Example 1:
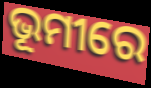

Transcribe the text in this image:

ଭୂମୀରେ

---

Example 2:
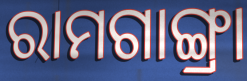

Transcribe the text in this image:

ରାମଗାଙ୍ଗ୍ରା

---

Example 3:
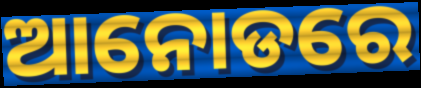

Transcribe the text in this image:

ଆନୋଡରେ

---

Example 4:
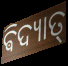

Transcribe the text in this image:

ଵିଦ୍ଯାତ୍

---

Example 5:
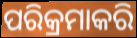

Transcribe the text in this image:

ପରିକ୍ରମାକରି